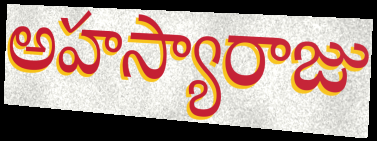
అహస్యారాజు